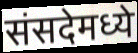
संसदेमध्ये